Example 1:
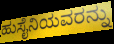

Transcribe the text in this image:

ಹುಸೈನಿಯವರನ್ನು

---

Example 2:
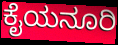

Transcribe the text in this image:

ಕೈಯನೂರಿ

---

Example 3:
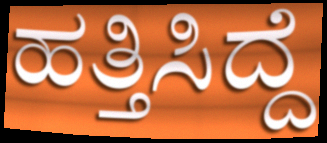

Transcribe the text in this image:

ಹತ್ತಿಸಿದ್ದೆ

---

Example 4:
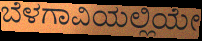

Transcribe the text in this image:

ಬೆಳಗಾವಿಯಲ್ಲಿಯೇ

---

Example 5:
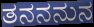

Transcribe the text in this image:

ತನನನುನ